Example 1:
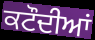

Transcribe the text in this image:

ਕਟੌਦੀਆਂ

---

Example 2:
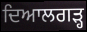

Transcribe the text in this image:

ਦਿਆਲਗੜ੍ਹ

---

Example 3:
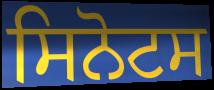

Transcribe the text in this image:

ਸਿਨੋਟਸ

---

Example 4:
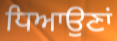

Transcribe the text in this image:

ਧਿਆਉਣਾਂ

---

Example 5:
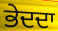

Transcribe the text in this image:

ਭੇਦਦਾ